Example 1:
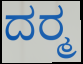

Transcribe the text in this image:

ದರ‍್ಮ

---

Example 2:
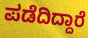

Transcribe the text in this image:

ಪಡೆದಿದ್ದಾರೆ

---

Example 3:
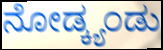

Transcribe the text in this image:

ನೋಡ್ಕ್ಯಂಡು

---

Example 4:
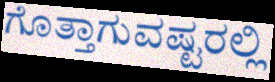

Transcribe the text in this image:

ಗೊತ್ತಾಗುವಷ್ಟರಲ್ಲಿ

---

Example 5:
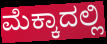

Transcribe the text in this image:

ಮೆಕ್ಕಾದಲ್ಲಿ